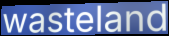
wasteland